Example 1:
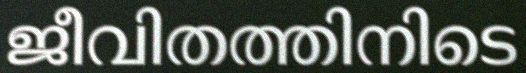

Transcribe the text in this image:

ജീവിതത്തിനിടെ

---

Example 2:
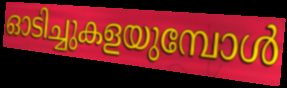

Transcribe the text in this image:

ഓടിച്ചുകളയുമ്പോൾ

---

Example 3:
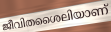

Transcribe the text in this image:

ജീവിതശൈലിയാണ്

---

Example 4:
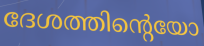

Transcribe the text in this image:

ദേശത്തിന്റെയോ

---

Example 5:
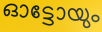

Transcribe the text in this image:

ഓട്ടോയും